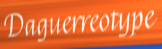
Daguerreotype